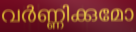
വർണ്ണിക്കുമോ